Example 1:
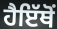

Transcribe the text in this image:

ਹੈਇੱਥੋਂ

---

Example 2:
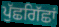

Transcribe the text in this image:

ਪੁੱਛਗਿੱਛਾਂ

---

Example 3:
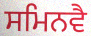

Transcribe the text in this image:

ਸਮਿਨਵੈ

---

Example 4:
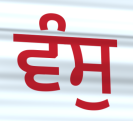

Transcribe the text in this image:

ਵੰਸੁ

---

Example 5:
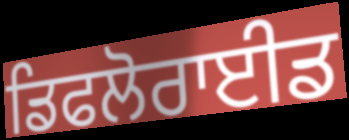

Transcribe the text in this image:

ਡਿਫਲੋਰਾਈਡ